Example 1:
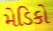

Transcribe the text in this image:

મેડિકો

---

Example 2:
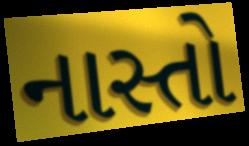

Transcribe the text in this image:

નાસ્તો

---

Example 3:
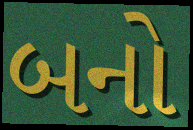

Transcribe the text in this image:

બનો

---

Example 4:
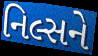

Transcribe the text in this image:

નિલ્સને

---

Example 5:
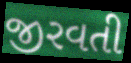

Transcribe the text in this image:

જીરવતી